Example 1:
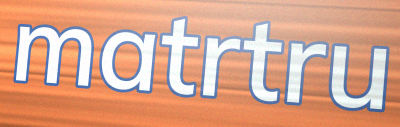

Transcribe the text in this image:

matrtru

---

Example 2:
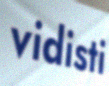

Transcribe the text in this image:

vidisti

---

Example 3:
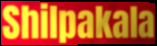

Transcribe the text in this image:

Shilpakala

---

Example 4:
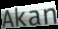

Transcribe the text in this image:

Akan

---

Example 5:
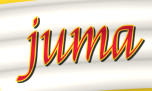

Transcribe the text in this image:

juma